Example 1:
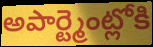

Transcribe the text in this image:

అపార్ట్మెంట్లోకి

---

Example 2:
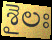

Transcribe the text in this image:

శైలః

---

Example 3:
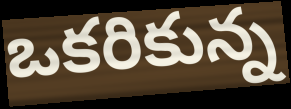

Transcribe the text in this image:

ఒకరికున్న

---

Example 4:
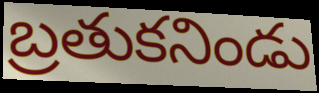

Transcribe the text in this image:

బ్రతుకనిండు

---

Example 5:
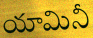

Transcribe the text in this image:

యామినీ